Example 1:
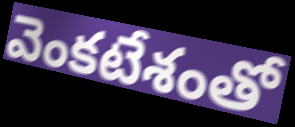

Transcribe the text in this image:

వెంకటేశంతో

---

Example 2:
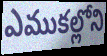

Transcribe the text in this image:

ఎముకల్లోని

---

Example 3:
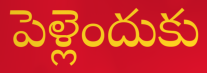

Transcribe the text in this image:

పెళ్లెందుకు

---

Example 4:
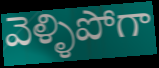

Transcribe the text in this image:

వెళ్ళిపోగా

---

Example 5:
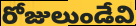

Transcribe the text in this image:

రోజులుండేవి